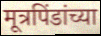
मूत्रपिंडांच्या